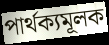
পার্থক্যমূলক